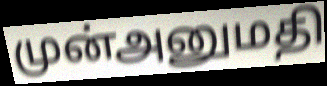
முன்அனுமதி